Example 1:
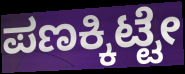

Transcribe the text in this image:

ಪಣಕ್ಕಿಟ್ಟೇ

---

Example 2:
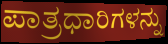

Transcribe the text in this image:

ಪಾತ್ರಧಾರಿಗಳನ್ನು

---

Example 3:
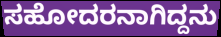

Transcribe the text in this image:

ಸಹೋದರನಾಗಿದ್ದನು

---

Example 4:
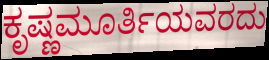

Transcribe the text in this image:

ಕೃಷ್ಣಮೂರ್ತಿಯವರದು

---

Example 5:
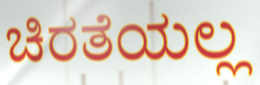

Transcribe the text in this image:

ಚಿರತೆಯಲ್ಲ